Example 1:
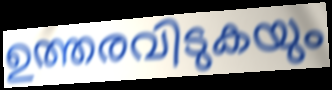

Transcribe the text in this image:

ഉത്തരവിടുകയും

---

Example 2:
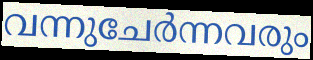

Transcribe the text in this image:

വന്നുചേർന്നവരും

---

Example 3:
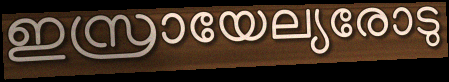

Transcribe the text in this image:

ഇസ്രായേല്യരോടു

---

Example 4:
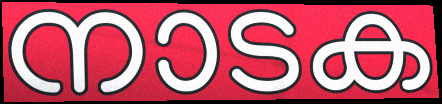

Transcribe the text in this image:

നാടക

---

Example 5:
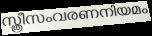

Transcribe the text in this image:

സ്ത്രീസംവരണനിയമം